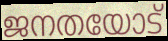
ജനതയോട്